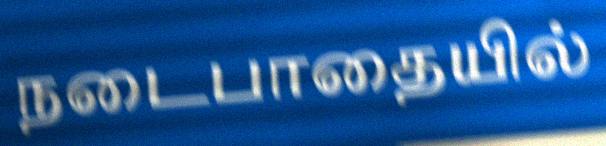
நடைபாதையில்